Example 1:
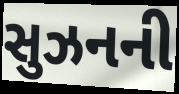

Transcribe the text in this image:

સુઝનની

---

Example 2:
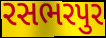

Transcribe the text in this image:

રસભરપુર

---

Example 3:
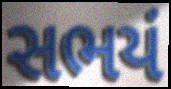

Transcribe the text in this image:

સભયં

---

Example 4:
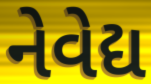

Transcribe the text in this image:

નેવેદ્ય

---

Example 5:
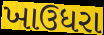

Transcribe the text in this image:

ખાઉધરા